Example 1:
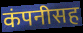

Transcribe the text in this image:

कंपनीसह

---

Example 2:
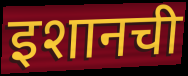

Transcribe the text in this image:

इशानची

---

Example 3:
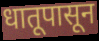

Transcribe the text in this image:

धातूपासून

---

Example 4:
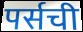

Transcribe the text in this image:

पर्सची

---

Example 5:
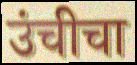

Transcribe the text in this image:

उंचीचा